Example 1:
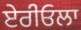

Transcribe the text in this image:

ਏਰੀਓਲਾ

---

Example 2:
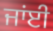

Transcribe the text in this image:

ਜਾਂਈ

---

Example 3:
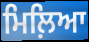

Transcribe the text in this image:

ਮਿਲ਼ਿਆ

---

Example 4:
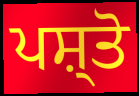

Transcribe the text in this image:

ਪਸ਼੍ਤੋ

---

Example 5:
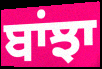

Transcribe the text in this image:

ਬਾਂਝਾ